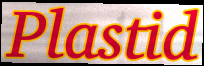
Plastid